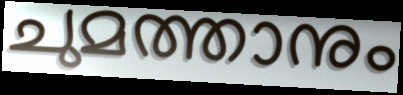
ചുമത്താനും